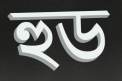
হুড